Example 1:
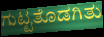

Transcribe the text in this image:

ಗುಟ್ಟತೊಡಗಿತು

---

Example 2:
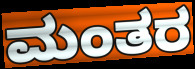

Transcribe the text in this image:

ಮಂತರ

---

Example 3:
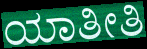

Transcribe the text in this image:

ಯಾತೀತಿ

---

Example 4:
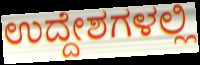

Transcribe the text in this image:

ಉದ್ದೇಶಗಳಲ್ಲಿ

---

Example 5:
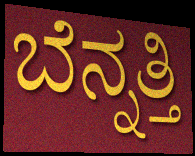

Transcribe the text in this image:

ಬೆನ್ನತ್ತಿ